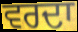
ਵਰਦਾ